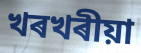
খৰখৰীয়া